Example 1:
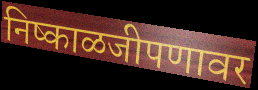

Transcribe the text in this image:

निष्काळजीपणावर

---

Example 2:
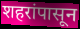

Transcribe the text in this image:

शहरांपासून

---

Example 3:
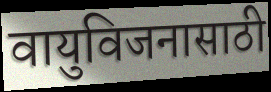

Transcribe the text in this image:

वायुविजनासाठी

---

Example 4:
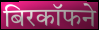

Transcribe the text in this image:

बिरकॉफने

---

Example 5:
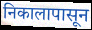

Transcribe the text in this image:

निकालापासून